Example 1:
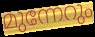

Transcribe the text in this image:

മുന്നേറും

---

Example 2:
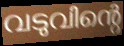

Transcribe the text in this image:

വടുവിന്റെ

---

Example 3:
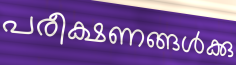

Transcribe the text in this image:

പരീക്ഷണങ്ങൾക്കു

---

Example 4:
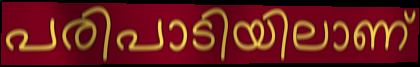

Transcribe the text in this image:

പരിപാടിയിലാണ്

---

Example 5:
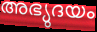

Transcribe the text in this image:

അഭ്യുദയം